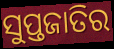
ସୁପ୍ତଜାତିର